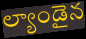
ల్యాండైన